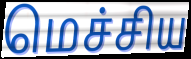
மெச்சிய